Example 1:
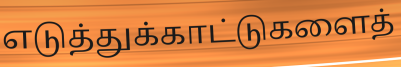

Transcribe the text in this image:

எடுத்துக்காட்டுகளைத்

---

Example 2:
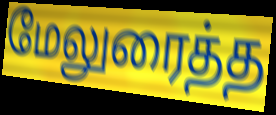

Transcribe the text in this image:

மேலுரைத்த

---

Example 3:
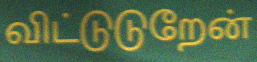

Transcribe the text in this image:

விட்டுடுறேன்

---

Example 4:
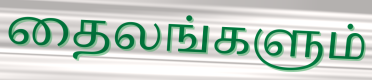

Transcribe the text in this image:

தைலங்களும்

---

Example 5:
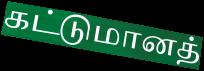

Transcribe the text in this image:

கட்டுமானத்